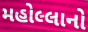
મહોલ્લાનો